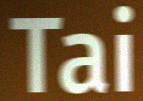
Tai